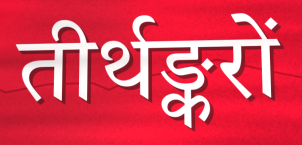
तीर्थङ्करों